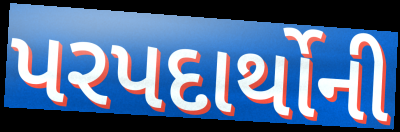
પરપદાર્થોની